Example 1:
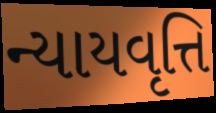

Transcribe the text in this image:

ન્યાયવૃત્તિ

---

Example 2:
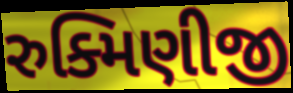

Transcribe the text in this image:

રુક્મિણીજી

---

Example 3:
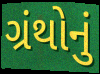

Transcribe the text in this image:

ગ્રંથોનું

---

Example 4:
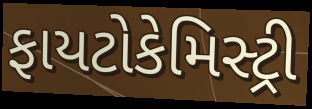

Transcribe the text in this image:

ફાયટોકેમિસ્ટ્રી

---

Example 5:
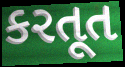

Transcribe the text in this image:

કરતૂત